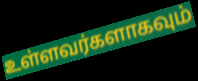
உள்ளவர்களாகவும்